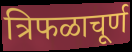
त्रिफळाचूर्ण